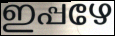
ഇപ്പഴേ